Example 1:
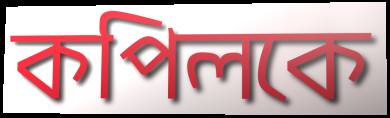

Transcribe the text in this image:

কপিলকে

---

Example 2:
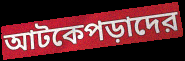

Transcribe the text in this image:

আটকেপড়াদের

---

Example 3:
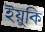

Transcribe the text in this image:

ইয়ুকি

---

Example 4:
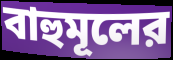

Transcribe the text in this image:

বাহুমূলের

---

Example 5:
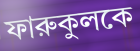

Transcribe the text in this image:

ফারুকুলকে